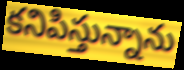
కనిపిస్తున్నాను